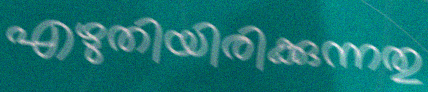
എഴുതിയിരിക്കുന്നതു